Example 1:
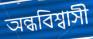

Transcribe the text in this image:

অন্ধবিশ্বাসী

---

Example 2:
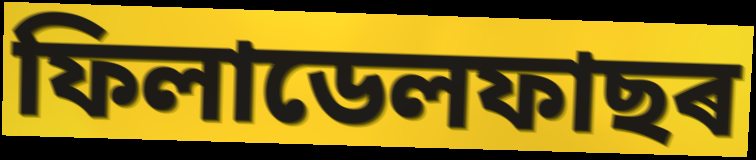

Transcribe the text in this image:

ফিলাডেলফাছৰ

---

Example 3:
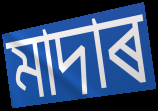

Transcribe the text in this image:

মাদাৰ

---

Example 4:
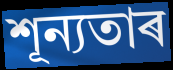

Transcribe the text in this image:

শূন্যতাৰ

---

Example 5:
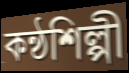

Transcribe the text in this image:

কন্ঠশিল্পী